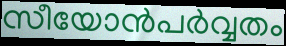
സീയോൻപർവ്വതം